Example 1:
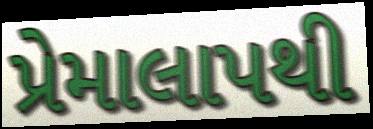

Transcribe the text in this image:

પ્રેમાલાપથી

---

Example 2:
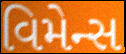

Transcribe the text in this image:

વિમેન્સ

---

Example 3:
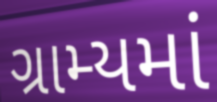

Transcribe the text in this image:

ગ્રામ્યમાં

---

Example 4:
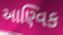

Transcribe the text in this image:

આણ્વિક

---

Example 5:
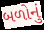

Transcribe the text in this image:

બળોનું